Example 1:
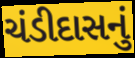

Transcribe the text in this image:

ચંડીદાસનું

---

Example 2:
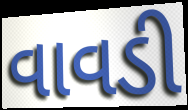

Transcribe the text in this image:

વાવડી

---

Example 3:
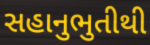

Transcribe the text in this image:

સહાનુભુતીથી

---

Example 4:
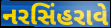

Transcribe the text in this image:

નરસિંહરાવે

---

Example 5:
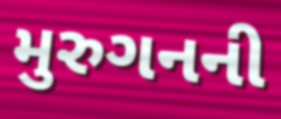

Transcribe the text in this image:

મુરુગનની